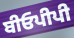
ਬੀਓਪੀਪੀ